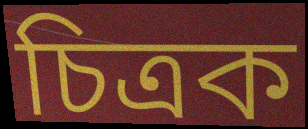
চিত্ৰক